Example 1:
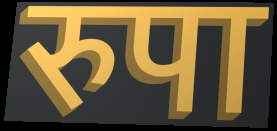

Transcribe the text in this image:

रुपा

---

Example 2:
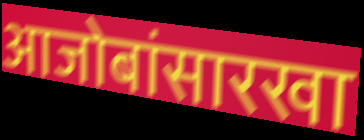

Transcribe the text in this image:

आजोबांसारखा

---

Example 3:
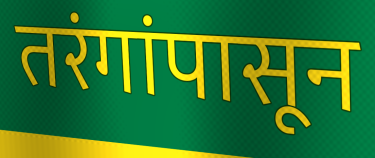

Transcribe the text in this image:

तरंगांपासून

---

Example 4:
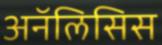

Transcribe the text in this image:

अनॅलिसिस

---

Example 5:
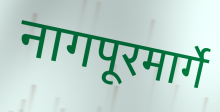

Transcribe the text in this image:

नागपूरमार्गे